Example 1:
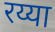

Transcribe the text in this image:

रय्या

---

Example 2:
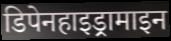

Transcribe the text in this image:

डिपेनहाइड्रामाइन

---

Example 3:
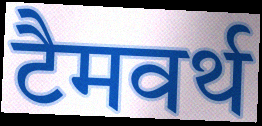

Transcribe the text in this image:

टैमवर्थ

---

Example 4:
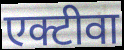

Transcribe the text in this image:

एक्टीवा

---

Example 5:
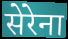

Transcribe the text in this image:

सेरेना